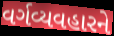
વર્ગવ્યવહારને